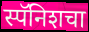
स्पॅनिशचा